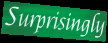
Surprisingly